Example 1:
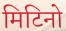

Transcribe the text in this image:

मिटिनो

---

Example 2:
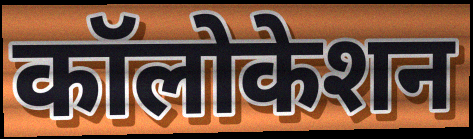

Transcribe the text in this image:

कॉलोकेशन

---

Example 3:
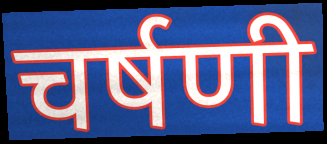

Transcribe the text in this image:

चर्षणी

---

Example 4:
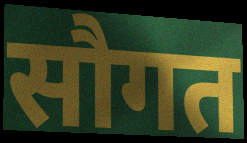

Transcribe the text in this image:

सौगत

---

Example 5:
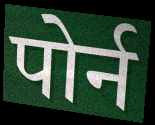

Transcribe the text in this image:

पोर्न